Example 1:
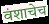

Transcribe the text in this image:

वंशाचेच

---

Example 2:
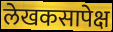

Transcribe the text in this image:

लेखकसापेक्ष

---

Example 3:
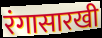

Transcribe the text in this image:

रंगासारखी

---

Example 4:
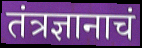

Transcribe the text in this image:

तंत्रज्ञानाचं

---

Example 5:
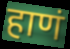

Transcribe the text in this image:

हाणं